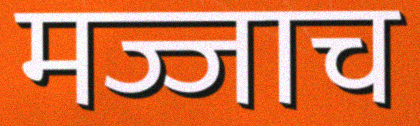
मज्जाच